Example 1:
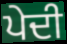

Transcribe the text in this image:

ਪੇਦੀ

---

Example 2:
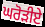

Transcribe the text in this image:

ਘਰੋੜੀਏ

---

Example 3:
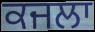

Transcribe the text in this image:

ਕਜਲਾ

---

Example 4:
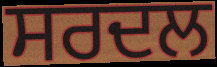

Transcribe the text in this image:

ਸਰਦਲ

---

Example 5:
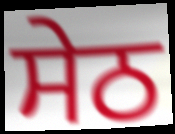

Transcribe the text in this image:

ਸੇਠ